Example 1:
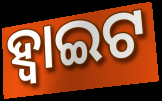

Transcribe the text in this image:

ହ୍ୱାଇଟ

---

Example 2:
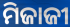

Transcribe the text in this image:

ମିଜାଜୀ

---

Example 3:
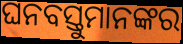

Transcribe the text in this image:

ଘନବସ୍ତୁମାନଙ୍କର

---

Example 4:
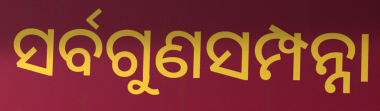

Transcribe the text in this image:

ସର୍ବଗୁଣସମ୍ପନ୍ନା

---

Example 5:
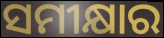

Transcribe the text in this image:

ସମୀକ୍ଷାର